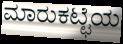
ಮಾರುಕಟ್ಟೆಯ